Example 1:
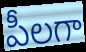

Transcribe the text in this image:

పీలగా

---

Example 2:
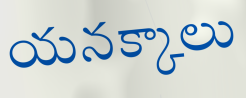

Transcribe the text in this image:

యనక్కాలు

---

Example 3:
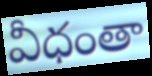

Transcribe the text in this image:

వీధంతా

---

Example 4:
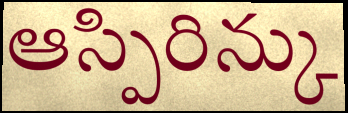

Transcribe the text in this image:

ఆస్పిరిన్కు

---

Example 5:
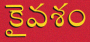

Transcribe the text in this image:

కైవశం